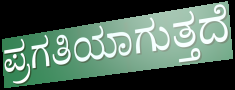
ಪ್ರಗತಿಯಾಗುತ್ತದೆ